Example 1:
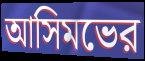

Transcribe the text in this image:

আসিমভের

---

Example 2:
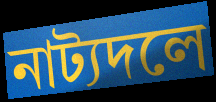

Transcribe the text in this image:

নাট্যদলে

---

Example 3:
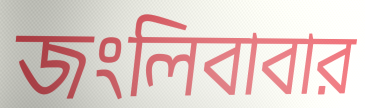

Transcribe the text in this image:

জংলিবাবার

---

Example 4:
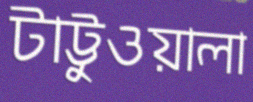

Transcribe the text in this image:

টাট্টুওয়ালা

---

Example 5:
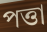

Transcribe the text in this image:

পত্তা